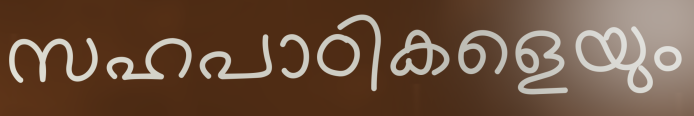
സഹപാഠികളെയും